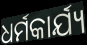
ଧର୍ମକାର୍ଯ୍ୟ